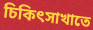
চিকিৎসাখাতে